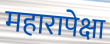
महारापेक्षा